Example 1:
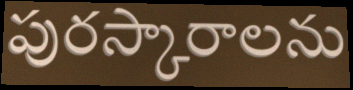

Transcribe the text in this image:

పురస్కారాలను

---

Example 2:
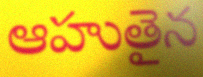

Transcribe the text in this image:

ఆహుతైన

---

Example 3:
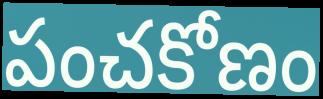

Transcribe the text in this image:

పంచకోణం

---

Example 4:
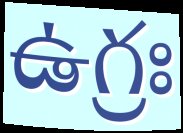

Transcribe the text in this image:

ఉగ్రః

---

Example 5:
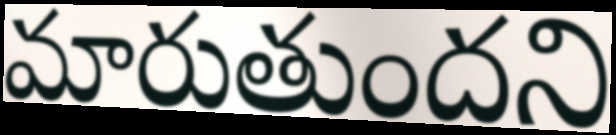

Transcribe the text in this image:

మారుతుందని